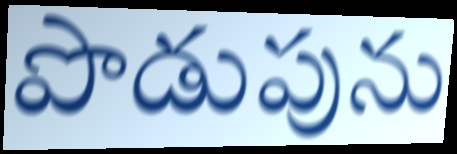
పొడుపును